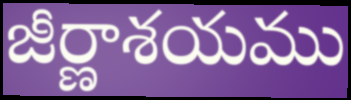
జీర్ణాశయము